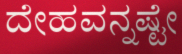
ದೇಹವನ್ನಷ್ಟೇ